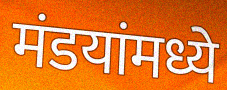
मंडयांमध्ये